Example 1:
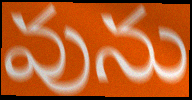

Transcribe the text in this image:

వును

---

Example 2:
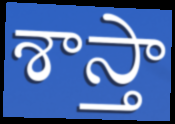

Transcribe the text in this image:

శాస్తా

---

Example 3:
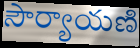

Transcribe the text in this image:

సౌర్యాయణి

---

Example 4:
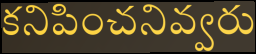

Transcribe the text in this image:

కనిపించనివ్వరు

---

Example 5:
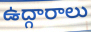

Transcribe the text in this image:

ఉద్గారాలు